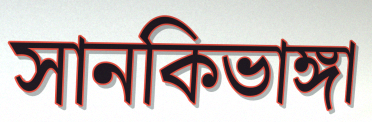
সানকিভাঙ্গা